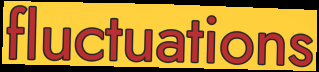
fluctuations